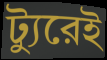
ট্যুরেই